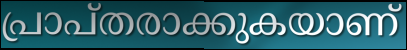
പ്രാപ്തരാക്കുകയാണ്